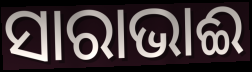
ସାରାଭାଈ